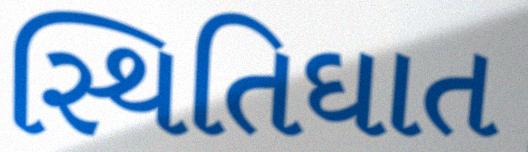
સ્થિતિઘાત